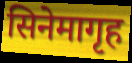
सिनेमागृह